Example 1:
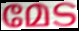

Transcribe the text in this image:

മേട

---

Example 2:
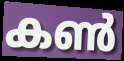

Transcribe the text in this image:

കൺ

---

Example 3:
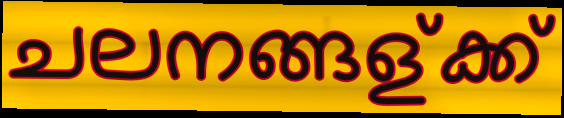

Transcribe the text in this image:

ചലനങ്ങള്ക്ക്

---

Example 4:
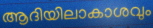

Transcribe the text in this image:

ആദിയിലാകാശവും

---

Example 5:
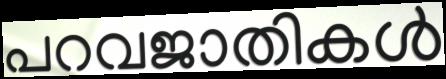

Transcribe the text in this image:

പറവജാതികൾ